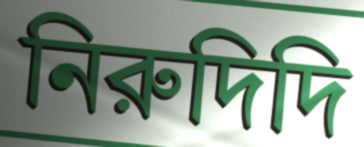
নিরুদিদি